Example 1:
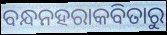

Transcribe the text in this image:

ବନ୍ଧନହରାକବିତାରୁ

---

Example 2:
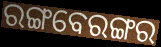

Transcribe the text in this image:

ରଙ୍ଗବେରଙ୍ଗର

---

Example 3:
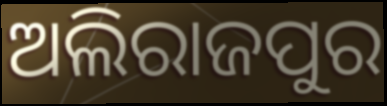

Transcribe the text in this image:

ଅଲିରାଜପୁର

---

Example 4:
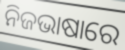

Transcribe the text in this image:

ନିଜଭାଷାରେ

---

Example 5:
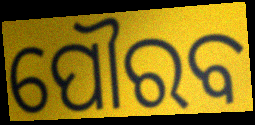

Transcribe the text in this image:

ପୌରବ